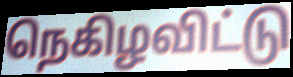
நெகிழவிட்டு